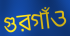
গুরগাঁও